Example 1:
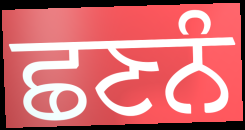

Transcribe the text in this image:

ਛਣਨੰ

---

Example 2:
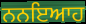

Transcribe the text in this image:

ਨਨਇਆਹ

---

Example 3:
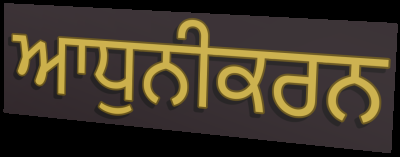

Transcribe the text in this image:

ਆਧੁਨੀਕਰਨ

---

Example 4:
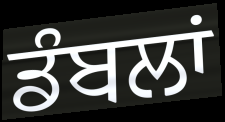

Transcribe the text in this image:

ਡੰਬਲਾਂ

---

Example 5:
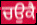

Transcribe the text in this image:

ਚਉਕੈ